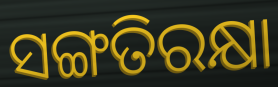
ସଙ୍ଗତିରକ୍ଷା